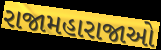
રાજામહારાજાઓ